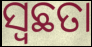
ସ୍ବଛତା